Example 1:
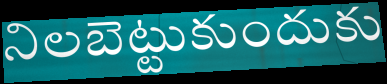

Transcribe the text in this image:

నిలబెట్టుకుందుకు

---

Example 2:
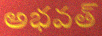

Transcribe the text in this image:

అభవత్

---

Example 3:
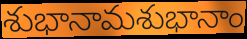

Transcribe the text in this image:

శుభానామశుభానాం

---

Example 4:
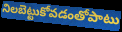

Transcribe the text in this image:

నిలబెట్టుకోవడంతోపాటు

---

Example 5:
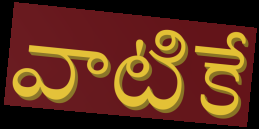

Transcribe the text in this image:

వాటికే